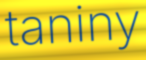
taniny